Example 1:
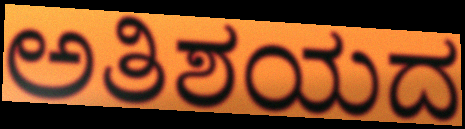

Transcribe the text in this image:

ಅತಿಶಯದ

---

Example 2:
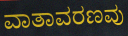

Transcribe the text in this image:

ವಾತಾವರಣವು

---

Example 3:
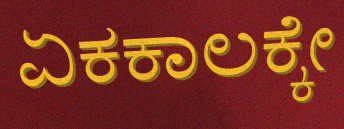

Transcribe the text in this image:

ಏಕಕಾಲಕ್ಕೇ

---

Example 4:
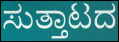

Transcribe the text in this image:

ಸುತ್ತಾಟದ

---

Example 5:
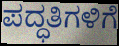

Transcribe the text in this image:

ಪದ್ಧತಿಗಳಿಗೆ